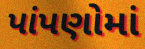
પાંપણોમાં